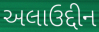
અલાઉદ્દીન